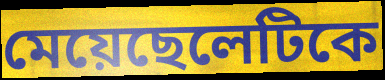
মেয়েছেলেটিকে